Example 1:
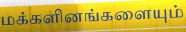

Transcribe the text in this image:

மக்களினங்களையும்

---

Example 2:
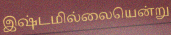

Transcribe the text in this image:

இஷ்டமில்லையென்று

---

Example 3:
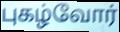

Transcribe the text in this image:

புகழ்வோர்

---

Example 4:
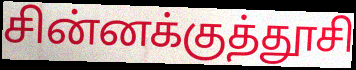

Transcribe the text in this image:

சின்னக்குத்தூசி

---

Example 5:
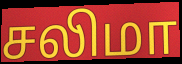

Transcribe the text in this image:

சலிமா